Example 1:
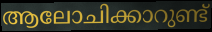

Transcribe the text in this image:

ആലോചിക്കാറുണ്ട്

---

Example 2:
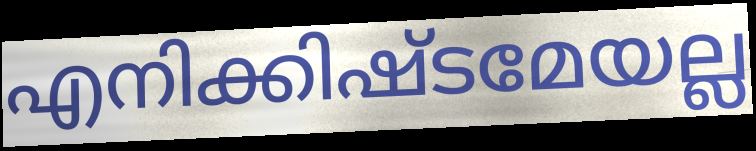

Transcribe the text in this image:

എനിക്കിഷ്ടമേയല്ല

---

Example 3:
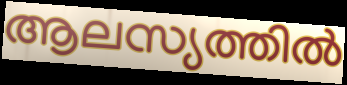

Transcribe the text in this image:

ആലസ്യത്തിൽ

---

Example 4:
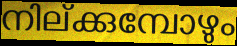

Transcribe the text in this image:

നില്ക്കുമ്പോഴും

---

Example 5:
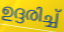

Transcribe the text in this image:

ഉദ്ദരിച്ച്